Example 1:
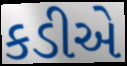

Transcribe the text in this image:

કડીએ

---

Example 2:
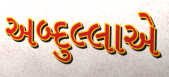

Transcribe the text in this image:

અબ્દુલ્લાએ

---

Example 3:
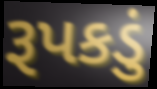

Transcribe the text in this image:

રૂપકડું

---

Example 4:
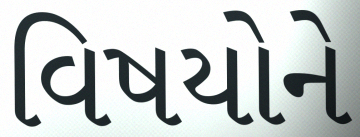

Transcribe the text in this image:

વિષયોને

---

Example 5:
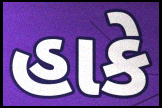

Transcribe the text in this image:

હાકે